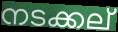
നടക്കല്